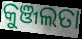
କୁଞ୍ଜଲତା